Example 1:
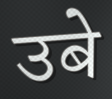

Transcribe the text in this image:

उबे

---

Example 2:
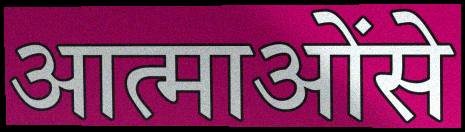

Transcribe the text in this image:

आत्माओंसे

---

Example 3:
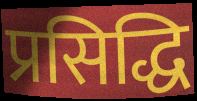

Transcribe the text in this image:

प्रसिद्धि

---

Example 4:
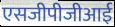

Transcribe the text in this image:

एसजीपीजीआई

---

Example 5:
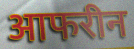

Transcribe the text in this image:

आफरीन